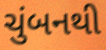
ચુંબનથી